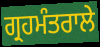
ਗ੍ਰਹਮੰਤਰਾਲੇ